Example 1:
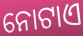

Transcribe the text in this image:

ନୋଟାଏ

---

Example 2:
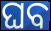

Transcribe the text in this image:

ଘବ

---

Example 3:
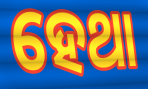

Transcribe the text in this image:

ହେଥା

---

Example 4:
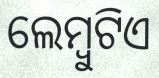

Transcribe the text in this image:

ଲେମ୍ବୁଟିଏ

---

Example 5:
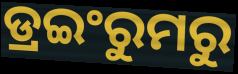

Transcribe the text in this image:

ଡ୍ରଇଂରୁମରୁ